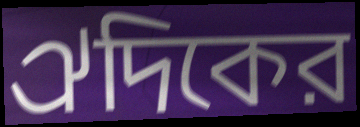
ঐদিকের